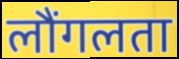
लौंगलता